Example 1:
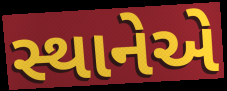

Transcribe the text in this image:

સ્થાનેએ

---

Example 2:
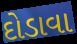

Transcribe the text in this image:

દોડાવા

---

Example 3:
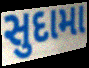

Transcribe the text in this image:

સુદામા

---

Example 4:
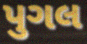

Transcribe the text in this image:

પુગલ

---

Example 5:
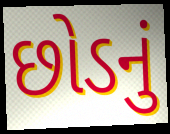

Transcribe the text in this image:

છોડનું